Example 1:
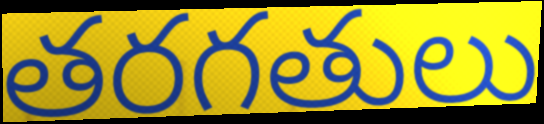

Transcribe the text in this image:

తరగతులు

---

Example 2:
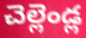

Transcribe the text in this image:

చెల్లెండ్ల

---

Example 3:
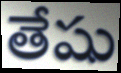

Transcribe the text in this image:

తేషు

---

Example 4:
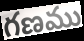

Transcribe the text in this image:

గణము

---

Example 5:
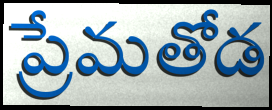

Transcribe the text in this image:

ప్రేమతోడ